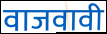
वाजवावी